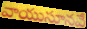
వాయుసూనవే